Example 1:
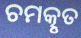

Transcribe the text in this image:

ଚମତ୍କୃତ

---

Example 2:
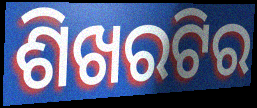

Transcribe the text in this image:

ଶିଖରଟିର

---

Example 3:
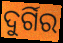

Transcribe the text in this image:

ଦୁର୍ଗିର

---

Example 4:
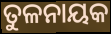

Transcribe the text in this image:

ତୁଳନାୟକ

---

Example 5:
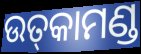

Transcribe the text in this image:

ଉତ୍‌କାମଣ୍ଡ